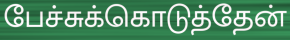
பேச்சுக்கொடுத்தேன்